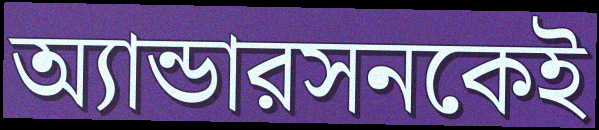
অ্যান্ডারসনকেই